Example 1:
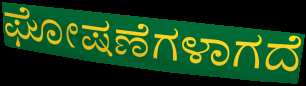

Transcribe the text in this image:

ಘೋಷಣೆಗಳಾಗದೆ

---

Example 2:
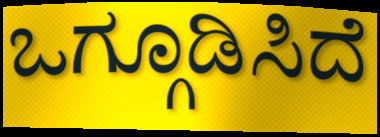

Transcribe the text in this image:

ಒಗ್ಗೂಡಿಸಿದೆ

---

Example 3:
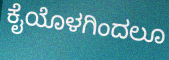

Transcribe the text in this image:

ಕೈಯೊಳಗಿಂದಲೂ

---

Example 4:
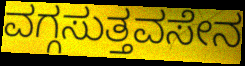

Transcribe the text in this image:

ವಗ್ಗಸುತ್ತವಸೇನ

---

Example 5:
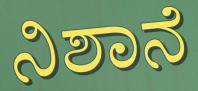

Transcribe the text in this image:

ನಿಶಾನೆ